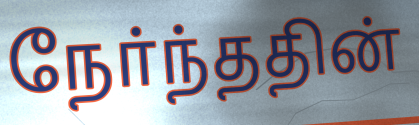
நேர்ந்ததின்